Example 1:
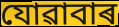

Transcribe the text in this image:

যোৱাবাৰ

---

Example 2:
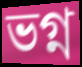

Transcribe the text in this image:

ভগ্ন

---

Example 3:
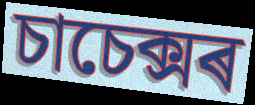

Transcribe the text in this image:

চাচেক্সৰ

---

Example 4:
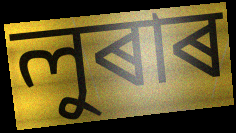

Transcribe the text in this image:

লুৰাৰ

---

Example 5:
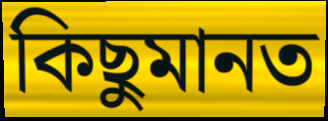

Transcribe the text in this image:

কিছুমানত